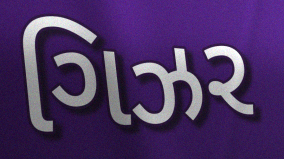
ગિઝર